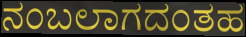
ನಂಬಲಾಗದಂತಹ